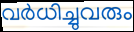
വർധിച്ചുവരും